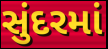
સુંદરમાં